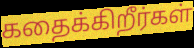
கதைக்கிறீர்கள்